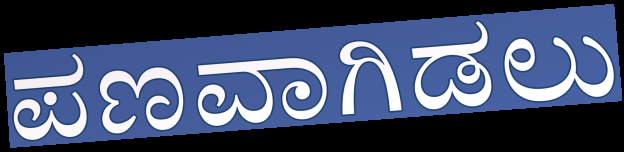
ಪಣವಾಗಿಡಲು